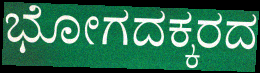
ಭೋಗದಕ್ಕರದ